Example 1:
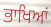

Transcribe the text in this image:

ਭਾਖਿਆਂ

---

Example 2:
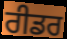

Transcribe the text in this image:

ਰੀਡਰ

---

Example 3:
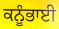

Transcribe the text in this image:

ਕਨੂੰਭਾਈ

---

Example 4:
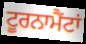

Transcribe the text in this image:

ਟੂਰਨਾਮੈਂਟਾਂ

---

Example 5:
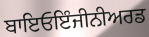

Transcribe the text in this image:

ਬਾਇਓਇੰਜੀਨੀਅਰਡ